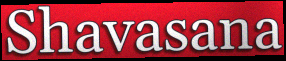
Shavasana